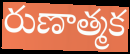
రుణాత్మక